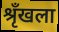
श्रृँखला